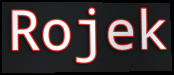
Rojek